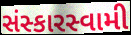
સંસ્કારસ્વામી